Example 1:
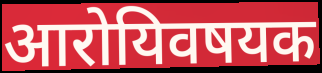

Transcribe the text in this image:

आरोयिवषयक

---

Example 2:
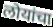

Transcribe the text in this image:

लोयांचा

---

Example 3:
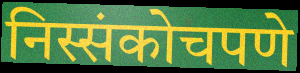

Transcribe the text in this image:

निस्संकोचपणे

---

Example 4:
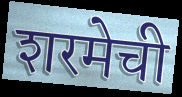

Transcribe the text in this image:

शरमेची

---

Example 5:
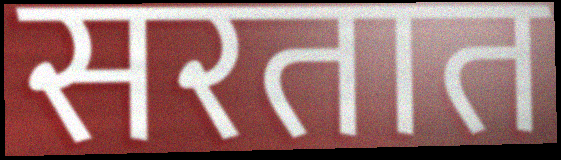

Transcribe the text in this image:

सरतात